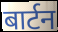
बार्टन